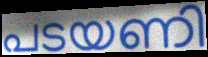
പടയണി